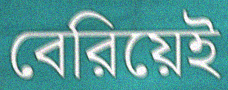
বেরিয়েই